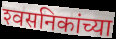
श्वसनिकांच्या